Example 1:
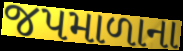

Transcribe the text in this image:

જપમાળાના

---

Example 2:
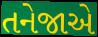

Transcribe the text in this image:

તનેજાએ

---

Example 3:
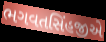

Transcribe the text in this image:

ભગવતસિંહજીએ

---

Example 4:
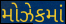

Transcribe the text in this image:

મોઝેકમાં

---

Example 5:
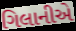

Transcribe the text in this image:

ગિલાનીએ